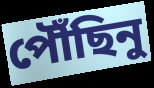
পৌঁছিনু